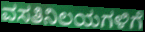
ವಸತಿನಿಲಯಗಳಿಗೆ